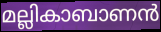
മല്ലികാബാണൻ